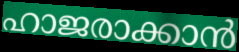
ഹാജരാക്കാൻ